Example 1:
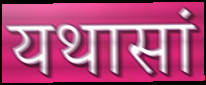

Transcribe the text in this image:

यथासां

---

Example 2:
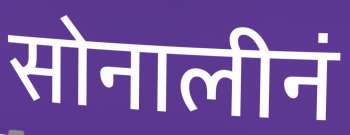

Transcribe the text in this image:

सोनालीनं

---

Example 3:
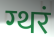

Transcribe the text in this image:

ग्थरं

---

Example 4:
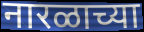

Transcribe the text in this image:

नारळाच्या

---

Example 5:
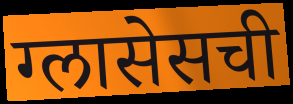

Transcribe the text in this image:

ग्लासेसची